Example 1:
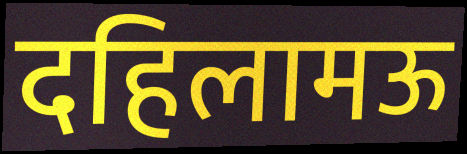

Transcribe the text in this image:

दहिलामऊ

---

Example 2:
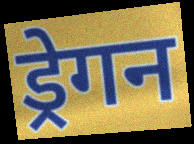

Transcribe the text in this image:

ड्रेगन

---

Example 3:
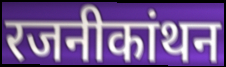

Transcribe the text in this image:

रजनीकांथन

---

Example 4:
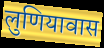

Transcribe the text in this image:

लुणियावास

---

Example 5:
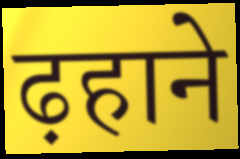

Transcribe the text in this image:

ढ़हाने